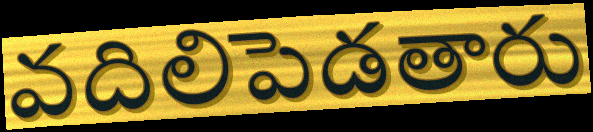
వదిలిపెడతారు